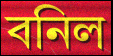
বনিল